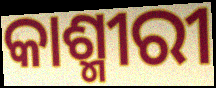
କାଶ୍ମୀରୀ